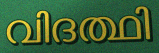
വിദത്ഥി